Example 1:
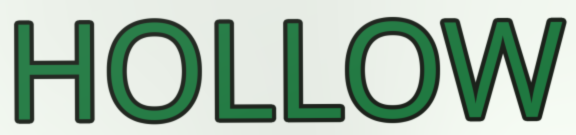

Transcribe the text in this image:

HOLLOW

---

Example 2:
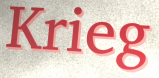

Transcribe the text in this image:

Krieg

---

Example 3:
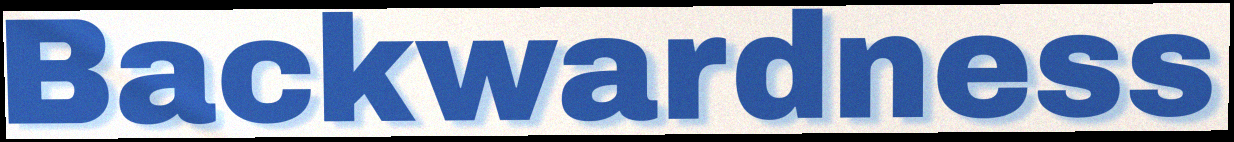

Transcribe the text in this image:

Backwardness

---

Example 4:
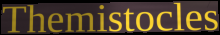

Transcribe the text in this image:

Themistocles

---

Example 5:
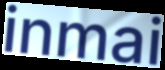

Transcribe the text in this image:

inmai